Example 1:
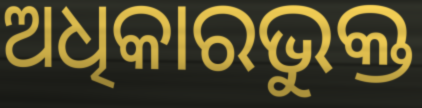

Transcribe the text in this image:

ଅଧିକାରଭୁକ୍ତ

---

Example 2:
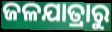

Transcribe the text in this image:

ଜଳଯାତ୍ରାରୁ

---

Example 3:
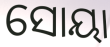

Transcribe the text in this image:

ସୋୟା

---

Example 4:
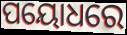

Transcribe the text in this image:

ପୟୋଧରେ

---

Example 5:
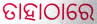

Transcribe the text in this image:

ତାହାଠାରେ